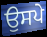
ਉਸਪੇ